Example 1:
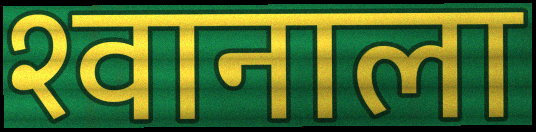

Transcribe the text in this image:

श्वानाला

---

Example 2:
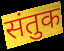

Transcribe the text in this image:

संतुक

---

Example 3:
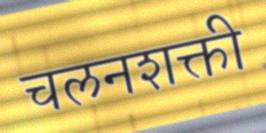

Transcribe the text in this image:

चलनशक्ती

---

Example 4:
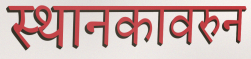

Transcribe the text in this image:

स्थानकावरुन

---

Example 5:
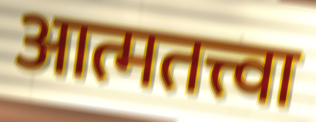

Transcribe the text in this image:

आत्मतत्त्वा